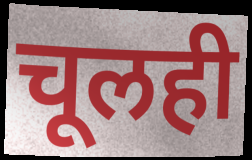
चूलही